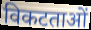
विकटताओं